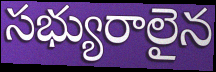
సభ్యురాలైన